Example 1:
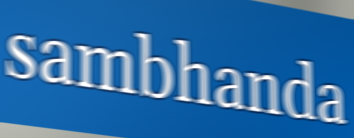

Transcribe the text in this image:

sambhanda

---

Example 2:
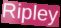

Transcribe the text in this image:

Ripley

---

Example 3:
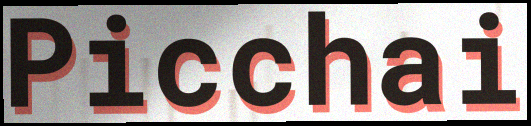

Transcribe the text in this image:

Picchai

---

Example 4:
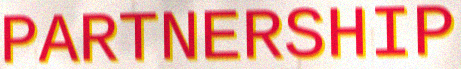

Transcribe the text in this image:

PARTNERSHIP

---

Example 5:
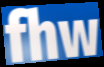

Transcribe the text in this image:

fhw